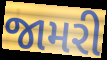
જામરી